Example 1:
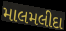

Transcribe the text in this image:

માલમલીદા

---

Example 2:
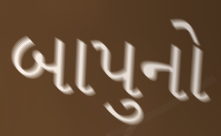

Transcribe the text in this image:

બાપુનો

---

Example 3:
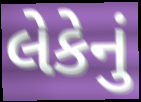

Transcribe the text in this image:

લેકેનું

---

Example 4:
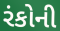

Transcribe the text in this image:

રંકોની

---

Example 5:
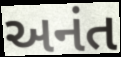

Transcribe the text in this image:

અનંત